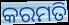
କରମତି